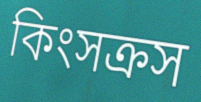
কিংসক্রস